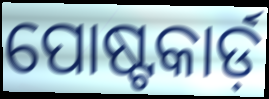
ପୋଷ୍ଟକାର୍ଡ଼